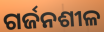
ଗର୍ଜନଶୀଳ